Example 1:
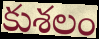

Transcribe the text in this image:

కుశలం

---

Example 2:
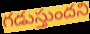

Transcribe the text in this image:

గడుస్తుందని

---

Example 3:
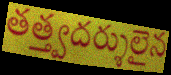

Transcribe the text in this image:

తత్త్వదర్శులైన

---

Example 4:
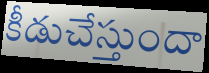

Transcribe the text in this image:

కీడుచేస్తుందా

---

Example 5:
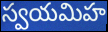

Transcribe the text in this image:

స్వయమిహ